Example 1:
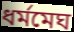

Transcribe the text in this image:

ধর্মমেঘ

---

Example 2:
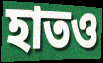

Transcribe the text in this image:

হাতও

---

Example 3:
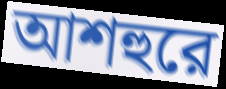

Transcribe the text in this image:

আশহুরে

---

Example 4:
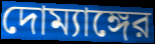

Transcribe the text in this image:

দোম্যাঙ্গের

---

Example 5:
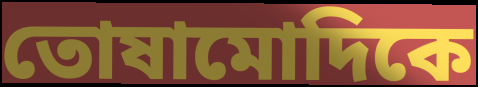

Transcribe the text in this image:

তোষামোদিকে